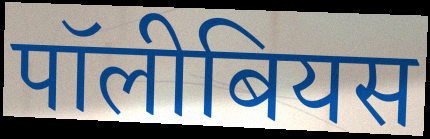
पॉलीबियस